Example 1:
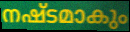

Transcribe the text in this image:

നഷ്ടമാകും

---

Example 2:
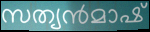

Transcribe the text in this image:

സത്യൻമാഷ്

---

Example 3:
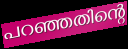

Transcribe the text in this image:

പറഞ്ഞതിന്റെ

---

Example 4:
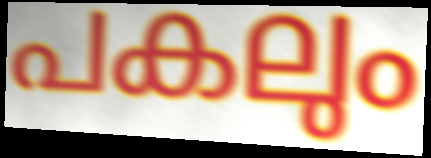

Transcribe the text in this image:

പകലും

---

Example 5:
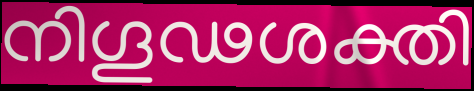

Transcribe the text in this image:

നിഗൂഢശക്തി